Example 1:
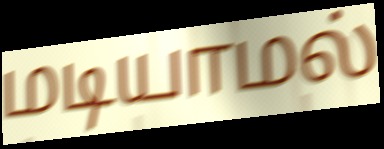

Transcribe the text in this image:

மடியாமல்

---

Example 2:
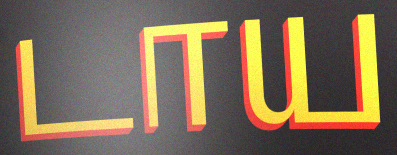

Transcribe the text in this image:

டாய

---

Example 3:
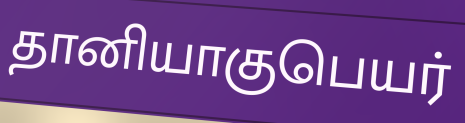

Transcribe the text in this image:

தானியாகுபெயர்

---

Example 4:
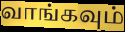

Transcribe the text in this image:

வாங்கவும்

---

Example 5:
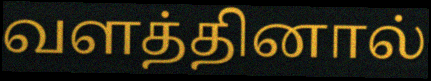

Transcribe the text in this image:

வளத்தினால்